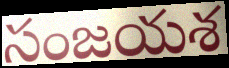
సంజయశ